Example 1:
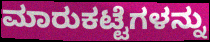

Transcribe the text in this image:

ಮಾರುಕಟ್ಟೆಗಳನ್ನು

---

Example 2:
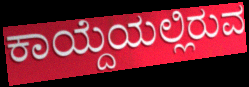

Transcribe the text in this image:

ಕಾಯ್ದೆಯಲ್ಲಿರುವ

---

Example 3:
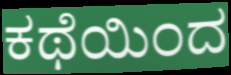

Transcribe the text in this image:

ಕಥೆಯಿಂದ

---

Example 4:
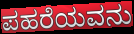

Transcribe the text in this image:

ಪಹರೆಯವನು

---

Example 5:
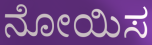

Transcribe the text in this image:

ನೋಯಿಸ